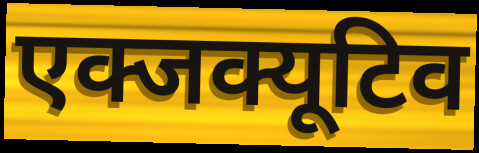
एक्जक्यूटिव